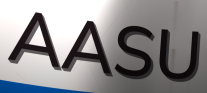
AASU